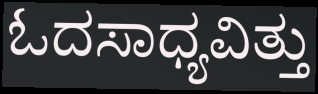
ಓದಸಾಧ್ಯವಿತ್ತು